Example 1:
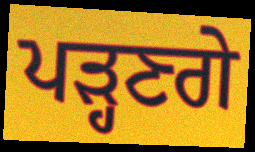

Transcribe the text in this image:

ਪੜ੍ਹਣਗੇ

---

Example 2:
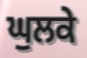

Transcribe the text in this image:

ਘੁਲਕੇ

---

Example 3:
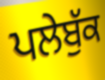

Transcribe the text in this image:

ਪਲੇਬੁੱਕ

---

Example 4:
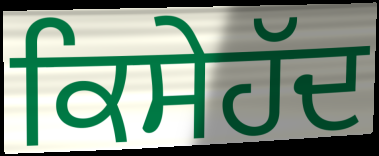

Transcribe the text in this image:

ਕਿਸੇਹੱਦ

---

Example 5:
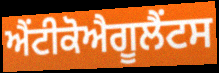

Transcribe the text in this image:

ਐਂਟੀਕੋਐਗੂਲੈਂਟਸ